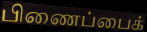
பிணைப்பைக்